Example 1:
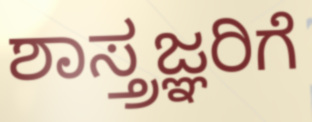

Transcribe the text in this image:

ಶಾಸ್ತ್ರಜ್ಞರಿಗೆ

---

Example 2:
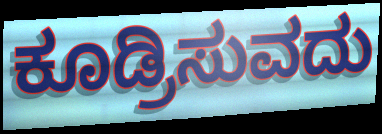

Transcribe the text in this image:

ಕೂಡ್ರಿಸುವದು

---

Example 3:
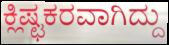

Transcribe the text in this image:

ಕ್ಲಿಷ್ಟಕರವಾಗಿದ್ದು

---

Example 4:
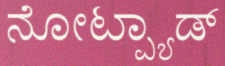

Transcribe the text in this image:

ನೋಟ್ಪ್ಯಾಡ್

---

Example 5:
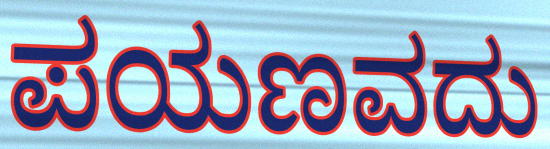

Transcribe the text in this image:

ಪಯಣವದು